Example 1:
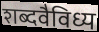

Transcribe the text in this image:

शब्दवैविध्य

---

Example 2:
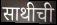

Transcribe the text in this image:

साथीची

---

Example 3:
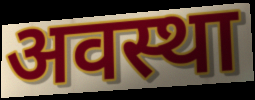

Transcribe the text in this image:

अवस्था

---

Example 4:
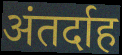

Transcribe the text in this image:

अंतर्दाह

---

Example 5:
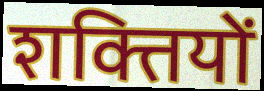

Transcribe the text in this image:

शक्तियों